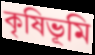
কৃষিভূমি